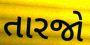
તારજો